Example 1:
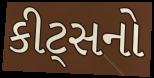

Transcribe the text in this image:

કીટ્સનો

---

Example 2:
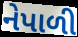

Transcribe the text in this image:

નેપાળી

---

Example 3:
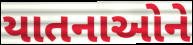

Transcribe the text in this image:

યાતનાઓને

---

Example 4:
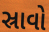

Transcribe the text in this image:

સ્રાવો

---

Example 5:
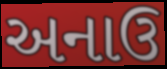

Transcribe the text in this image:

અનાઉ